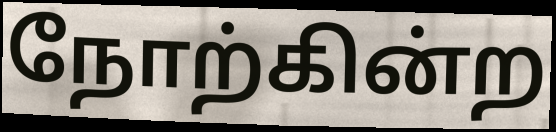
நோற்கின்ற